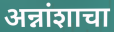
अन्नांशाचा